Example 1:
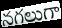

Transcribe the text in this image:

నగలుగా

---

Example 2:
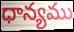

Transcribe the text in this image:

ధాన్యము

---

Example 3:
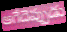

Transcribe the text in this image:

ఆగేదెప్పుడు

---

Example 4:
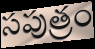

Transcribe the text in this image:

సపుత్రం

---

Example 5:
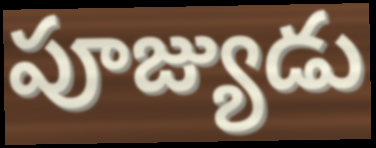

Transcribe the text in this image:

పూజ్యుడు